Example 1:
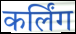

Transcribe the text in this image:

कर्लिंग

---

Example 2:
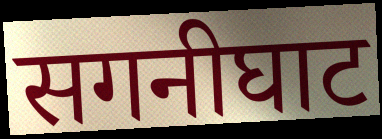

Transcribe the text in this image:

सगनीघाट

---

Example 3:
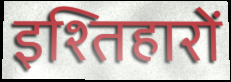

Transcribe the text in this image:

इश्तिहारों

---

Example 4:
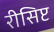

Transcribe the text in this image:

रीसिप्ट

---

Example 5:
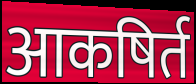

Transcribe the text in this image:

आकषिर्त